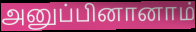
அனுப்பினானாம்